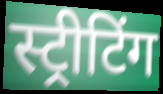
स्ट्रीटिंग